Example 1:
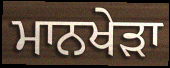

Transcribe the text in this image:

ਮਾਨਖੇੜਾ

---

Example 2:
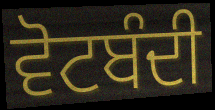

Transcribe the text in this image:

ਵੋਟਬੰਦੀ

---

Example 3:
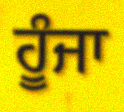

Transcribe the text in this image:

ਹੂੰਜਾ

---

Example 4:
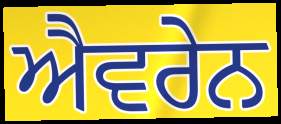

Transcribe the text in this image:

ਐਵਰੇਨ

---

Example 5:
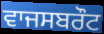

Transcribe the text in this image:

ਵਾਜਸਬਰੌਟ